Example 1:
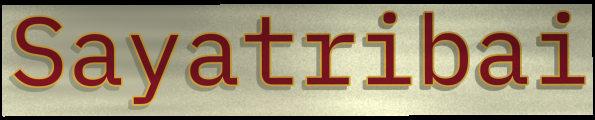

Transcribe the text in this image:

Sayatribai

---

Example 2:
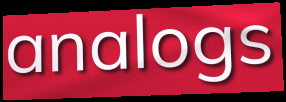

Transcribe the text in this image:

analogs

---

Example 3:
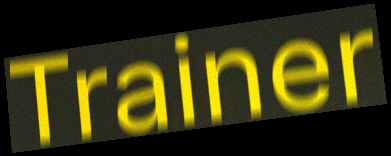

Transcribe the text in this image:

Trainer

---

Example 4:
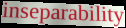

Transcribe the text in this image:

inseparability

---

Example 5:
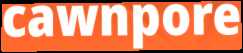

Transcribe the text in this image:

cawnpore